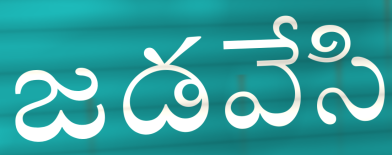
జడవేసి